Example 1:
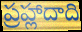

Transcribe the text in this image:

ప్రహ్లాదాది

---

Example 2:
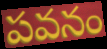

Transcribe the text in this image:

పవనం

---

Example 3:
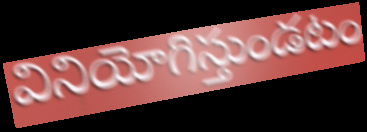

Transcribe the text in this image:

వినియోగిస్తుండటం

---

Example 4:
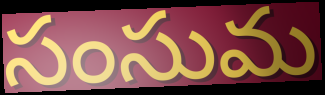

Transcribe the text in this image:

సంసుమ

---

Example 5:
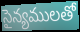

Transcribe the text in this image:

సైన్యములతో